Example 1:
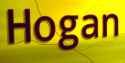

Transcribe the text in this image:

Hogan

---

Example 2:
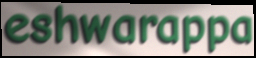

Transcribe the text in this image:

eshwarappa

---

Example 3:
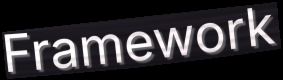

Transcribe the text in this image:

Framework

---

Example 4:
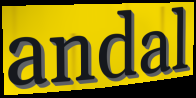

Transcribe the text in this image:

andal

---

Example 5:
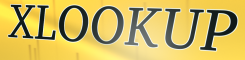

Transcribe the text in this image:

XLOOKUP